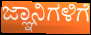
ಜ್ಞಾನಿಗಳಿಗೆ